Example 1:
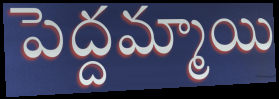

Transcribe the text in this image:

పెద్దమ్మాయి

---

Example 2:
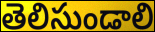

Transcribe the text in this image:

తెలిసుండాలి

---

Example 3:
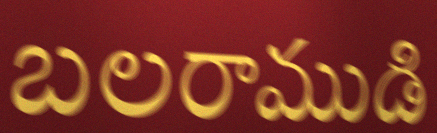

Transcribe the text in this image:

బలరాముడి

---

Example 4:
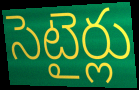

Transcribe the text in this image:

సెటైర్లు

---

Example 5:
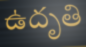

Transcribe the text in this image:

ఉదృతి